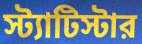
স্ট্যাটিস্টার